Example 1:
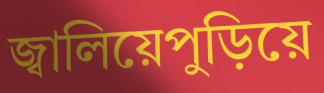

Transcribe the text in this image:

জ্বালিয়েপুড়িয়ে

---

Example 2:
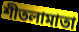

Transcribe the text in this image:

শীতলামাতা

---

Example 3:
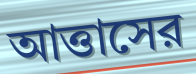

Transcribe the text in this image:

আত্তাসের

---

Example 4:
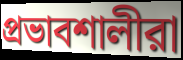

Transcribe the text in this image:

প্রভাবশালীরা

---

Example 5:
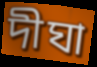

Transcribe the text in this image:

দীঘা